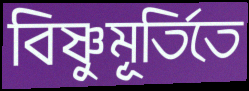
বিষ্ণুমূর্তিতে